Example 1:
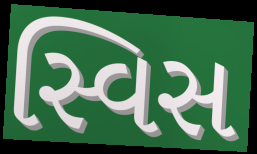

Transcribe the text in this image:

સ્વિસ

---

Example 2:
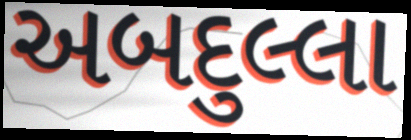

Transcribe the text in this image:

અબદુલ્લા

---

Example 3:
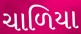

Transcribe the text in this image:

ચાળિયા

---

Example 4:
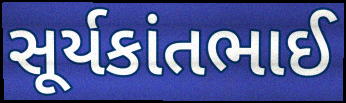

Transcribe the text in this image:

સૂર્યકાંતભાઈ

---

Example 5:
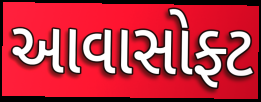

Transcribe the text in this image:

આવાસોફ્ટ